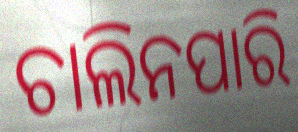
ଚାଲିନପାରି